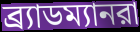
ব্র্যাডম্যানরা